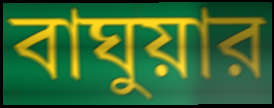
বাঘুয়ার